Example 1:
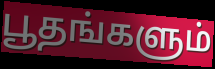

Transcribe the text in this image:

பூதங்களும்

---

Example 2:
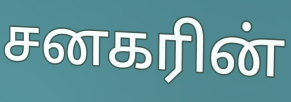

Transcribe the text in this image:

சனகரின்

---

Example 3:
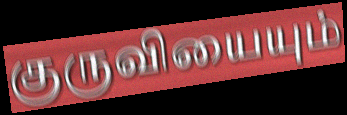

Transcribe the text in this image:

குருவியையும்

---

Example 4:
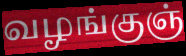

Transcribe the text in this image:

வழங்குஞ்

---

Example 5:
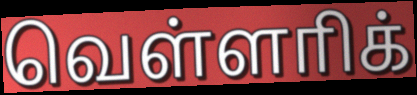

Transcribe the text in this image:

வெள்ளரிக்